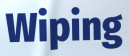
Wiping